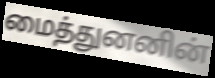
மைத்துனனின்